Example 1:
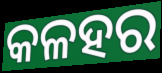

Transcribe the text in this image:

କଳହର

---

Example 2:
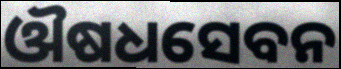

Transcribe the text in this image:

ଔଷଧସେବନ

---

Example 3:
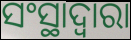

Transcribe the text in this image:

ସଂସ୍ଥାଦ୍ୱାରା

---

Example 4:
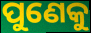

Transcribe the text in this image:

ପୁଣେକୁ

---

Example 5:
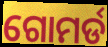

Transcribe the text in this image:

ଗୋମର୍ଡ